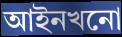
আইনখনো